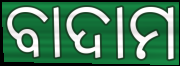
ବାଦାମ